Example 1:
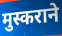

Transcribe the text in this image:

मुस्कराने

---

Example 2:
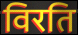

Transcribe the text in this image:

विरति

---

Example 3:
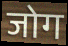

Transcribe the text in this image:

जोग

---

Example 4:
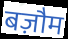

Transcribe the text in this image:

बज़ौम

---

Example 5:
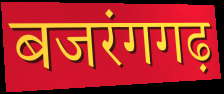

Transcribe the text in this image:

बजरंगगढ़